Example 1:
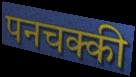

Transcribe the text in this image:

पनचक्की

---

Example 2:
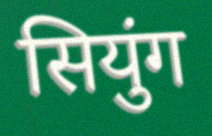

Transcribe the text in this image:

सियुंग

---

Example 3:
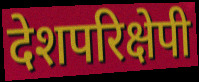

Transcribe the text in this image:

देशपरिक्षेपी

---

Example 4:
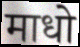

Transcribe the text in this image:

माधो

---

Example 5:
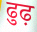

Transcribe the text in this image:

ढुढ़